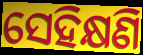
ସେହିକ୍ଷଣି